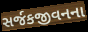
સર્જકજીવનના